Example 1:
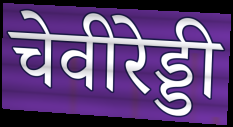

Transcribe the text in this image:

चेवीरेड्डी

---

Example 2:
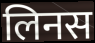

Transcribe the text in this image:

लिनस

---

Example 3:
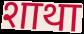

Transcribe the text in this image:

शाथा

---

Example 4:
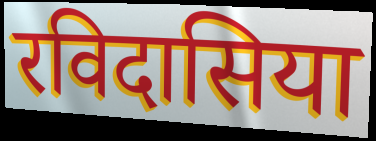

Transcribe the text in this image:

रविदासिया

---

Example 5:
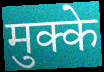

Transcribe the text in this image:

मुक्के